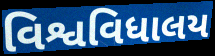
વિશ્વવિધાલય